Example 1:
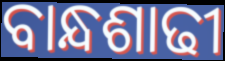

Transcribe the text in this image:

ବାନ୍ଧଶାଢୀ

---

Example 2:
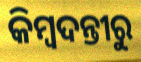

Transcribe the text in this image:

କିମ୍ବଦନ୍ତୀରୁ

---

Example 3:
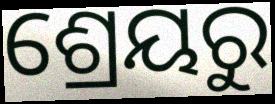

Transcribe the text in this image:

ଶ୍ରେୟରୁ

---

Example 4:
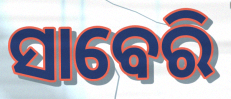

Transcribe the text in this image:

ସାବେରି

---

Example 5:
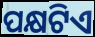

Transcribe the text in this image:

ପକ୍ଷଟିଏ